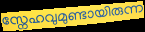
സ്നേഹവുമുണ്ടായിരുന്ന